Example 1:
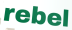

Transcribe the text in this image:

rebel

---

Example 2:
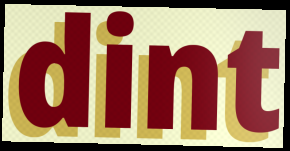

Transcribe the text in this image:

dint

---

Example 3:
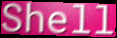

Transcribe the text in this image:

Shell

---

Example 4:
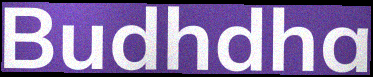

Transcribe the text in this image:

Budhdha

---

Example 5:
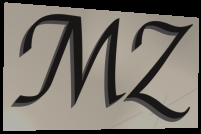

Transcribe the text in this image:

MZ